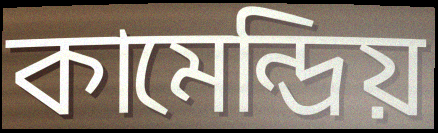
কামেন্দ্রিয়